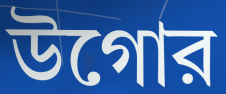
উগোর